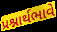
પ્રશ્નાર્થભાવે